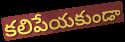
కలిపేయకుండా